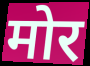
मोर